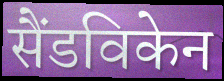
सैंडविकेन